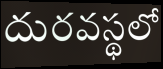
దురవస్థలో